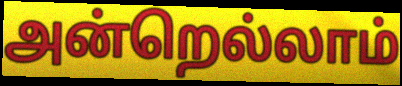
அன்றெல்லாம்